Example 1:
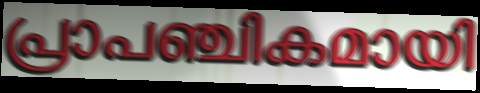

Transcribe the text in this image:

പ്രാപഞ്ചികമായി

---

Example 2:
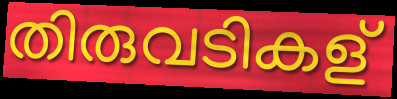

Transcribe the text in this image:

തിരുവടികള്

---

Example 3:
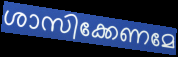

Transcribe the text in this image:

ശാസിക്കേണമേ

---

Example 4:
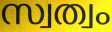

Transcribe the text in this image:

സ്വത്വം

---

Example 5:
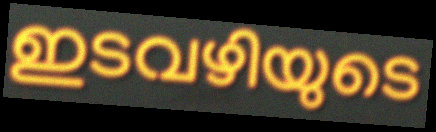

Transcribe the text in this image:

ഇടവഴിയുടെ